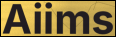
Aiims